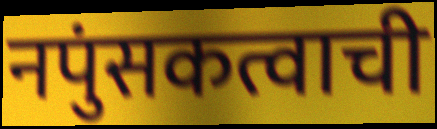
नपुंसकत्वाची